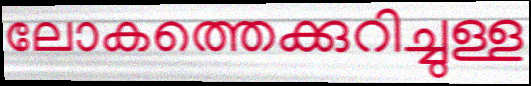
ലോകത്തെക്കുറിച്ചുള്ള